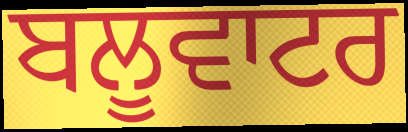
ਬਲੂਵਾਟਰ